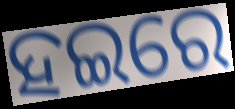
ହଇରେ